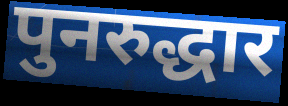
पुनरुद्धार